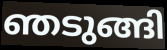
ഞടുങ്ങി